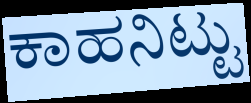
ಕಾಹನಿಟ್ಟು